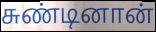
சுண்டினான்